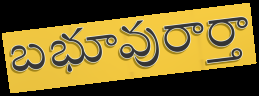
బభూవురార్తా